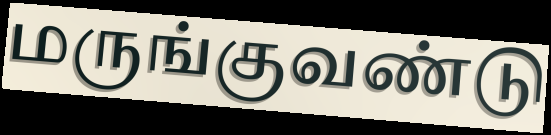
மருங்குவண்டு